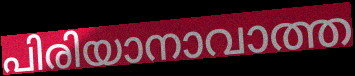
പിരിയാനാവാത്ത